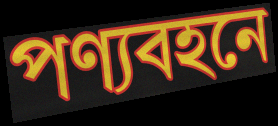
পণ্যবহনে